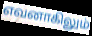
எவனாகிலும்